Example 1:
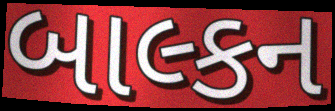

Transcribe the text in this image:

બાલ્કન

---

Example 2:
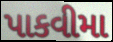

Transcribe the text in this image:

પાકવીમા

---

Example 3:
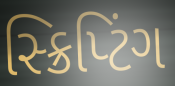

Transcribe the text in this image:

સ્ક્રિપ્ટિંગ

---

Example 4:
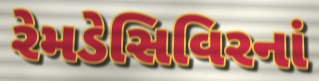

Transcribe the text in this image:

રેમડેસિવિરનાં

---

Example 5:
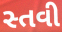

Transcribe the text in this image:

સ્તવી